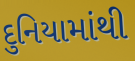
દુનિયામાંથી